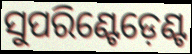
ସୁପରିଣ୍ଟେଡ଼େଣ୍ଟ